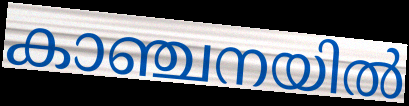
കാഞ്ചനയിൽ